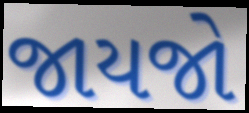
જાયજો